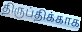
திருப்திக்காக